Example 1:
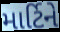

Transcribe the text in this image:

માર્ટિને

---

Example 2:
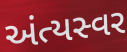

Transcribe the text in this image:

અંત્યસ્વર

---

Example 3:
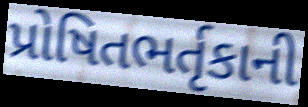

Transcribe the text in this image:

પ્રોષિતભર્તૃકાની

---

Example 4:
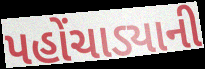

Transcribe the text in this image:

પહોંચાડ્યાની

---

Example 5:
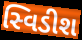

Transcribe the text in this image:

સ્વિડીશ